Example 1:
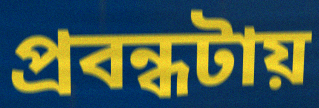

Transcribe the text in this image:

প্রবন্ধটায়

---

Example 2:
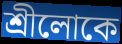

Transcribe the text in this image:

শ্রীলোকে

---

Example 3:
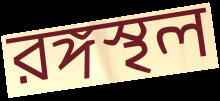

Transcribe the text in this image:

রঙ্গস্থল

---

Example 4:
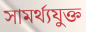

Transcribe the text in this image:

সামর্থ্যযুক্ত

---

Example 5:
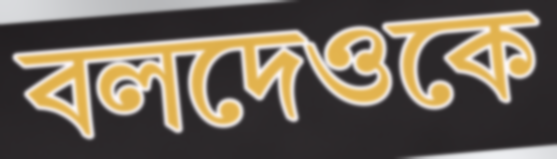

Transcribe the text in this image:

বলদেওকে